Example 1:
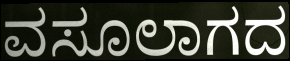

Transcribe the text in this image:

ವಸೂಲಾಗದ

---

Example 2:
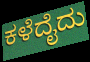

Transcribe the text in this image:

ಕಳೆದೈದು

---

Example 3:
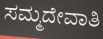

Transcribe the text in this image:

ಸಮ್ಮದೇವಾತಿ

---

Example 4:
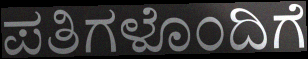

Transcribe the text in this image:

ಪತಿಗಳೊಂದಿಗೆ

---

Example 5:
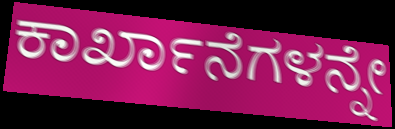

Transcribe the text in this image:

ಕಾರ್ಖಾನೆಗಳನ್ನೇ